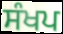
ਸੰਖਪ